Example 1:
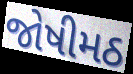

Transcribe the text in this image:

જોષીમઠ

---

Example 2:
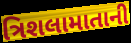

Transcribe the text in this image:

ત્રિશલામાતાની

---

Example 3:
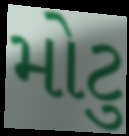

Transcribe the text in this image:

મોટુ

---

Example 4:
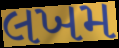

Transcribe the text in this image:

લખમ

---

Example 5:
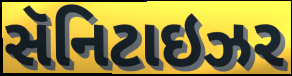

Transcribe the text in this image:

સૅનિટાઇઝર